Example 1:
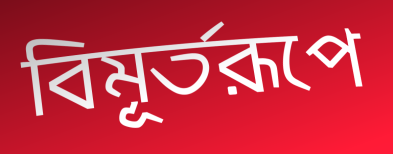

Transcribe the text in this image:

বিমূর্তরূপে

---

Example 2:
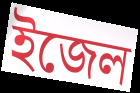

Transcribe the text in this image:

ইজেল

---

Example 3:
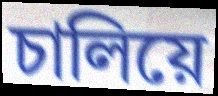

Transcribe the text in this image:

চালিয়ে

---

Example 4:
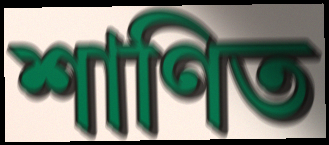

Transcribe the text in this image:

শাণিত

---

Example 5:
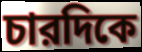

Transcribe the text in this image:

চারদিকে